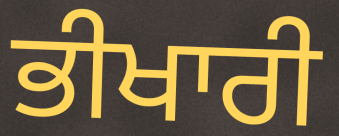
ਭੀਖਾਰੀ